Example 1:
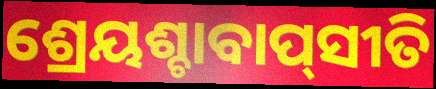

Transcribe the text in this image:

ଶ୍ରେୟଶ୍ଚାବାପ୍‌ସୀତି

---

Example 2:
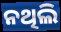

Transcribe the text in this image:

ନଥିଲି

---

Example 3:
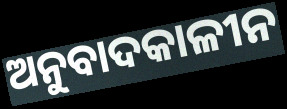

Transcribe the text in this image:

ଅନୁବାଦକାଳୀନ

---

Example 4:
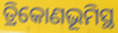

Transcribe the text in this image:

ତ୍ରିକୋଣଭୂମିସ୍ଥ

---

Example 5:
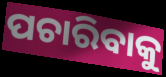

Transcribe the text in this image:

ପଚାରିବାକୁ